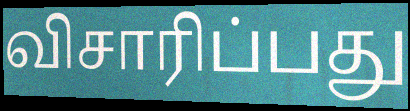
விசாரிப்பது